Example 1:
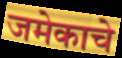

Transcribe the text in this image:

जमेकाचे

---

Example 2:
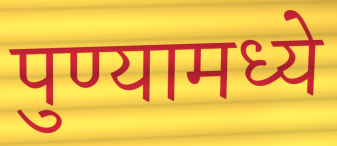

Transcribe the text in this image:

पुण्यामध्ये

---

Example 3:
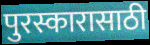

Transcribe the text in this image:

पुरस्कारासाठी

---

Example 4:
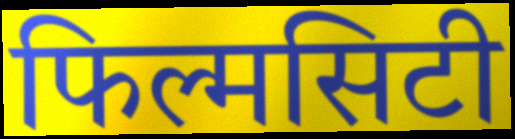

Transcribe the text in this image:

फिल्मसिटी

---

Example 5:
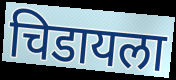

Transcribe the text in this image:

चिडायला